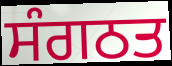
ਸੰਗਠਤ